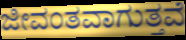
ಜೀವಂತವಾಗುತ್ತವೆ